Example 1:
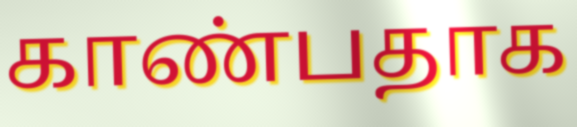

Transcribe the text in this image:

காண்பதாக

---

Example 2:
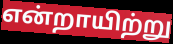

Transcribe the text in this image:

என்றாயிற்று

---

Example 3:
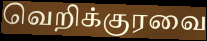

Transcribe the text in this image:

வெறிக்குரவை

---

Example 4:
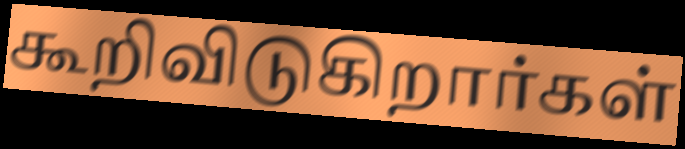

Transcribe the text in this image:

கூறிவிடுகிறார்கள்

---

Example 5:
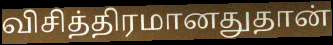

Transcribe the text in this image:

விசித்திரமானதுதான்